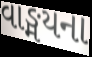
વાઙ્મયના